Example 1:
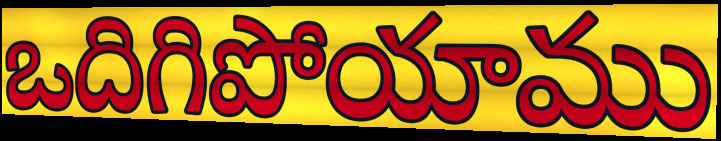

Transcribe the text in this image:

ఒదిగిపోయాము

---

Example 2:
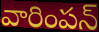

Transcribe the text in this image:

వారింపన్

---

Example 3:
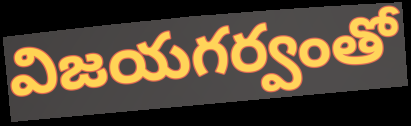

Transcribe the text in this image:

విజయగర్వంతో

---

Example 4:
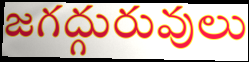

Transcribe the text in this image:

జగద్గురువులు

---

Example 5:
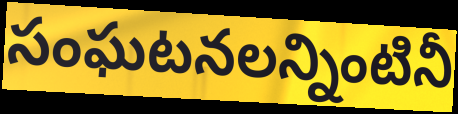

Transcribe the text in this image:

సంఘటనలన్నింటినీ